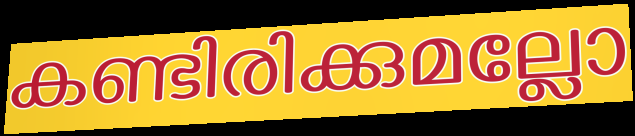
കണ്ടിരിക്കുമല്ലോ